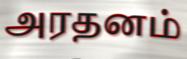
அரதனம்